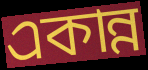
একান্ন